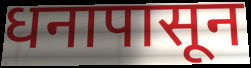
धनापासून